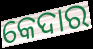
କେଦାର